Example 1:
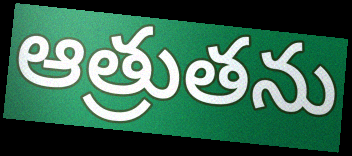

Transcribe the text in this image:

ఆత్రుతను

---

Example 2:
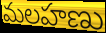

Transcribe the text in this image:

మలహణు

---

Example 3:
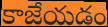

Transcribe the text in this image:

కాజేయడం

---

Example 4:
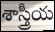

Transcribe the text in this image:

శాస్త్రీయ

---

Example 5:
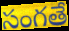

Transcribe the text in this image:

సంగతే